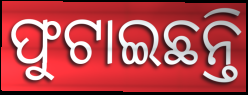
ଫୁଟାଇଛନ୍ତି